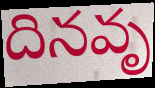
దినవృ